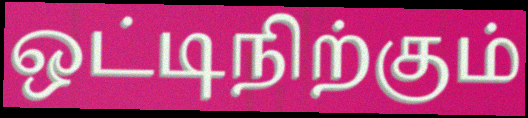
ஒட்டிநிற்கும்